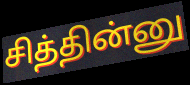
சித்தின்னு